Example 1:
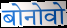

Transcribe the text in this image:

बोनोवो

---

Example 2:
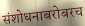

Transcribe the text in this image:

संशोधनाबरोबरच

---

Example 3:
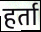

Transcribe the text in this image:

हर्ता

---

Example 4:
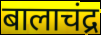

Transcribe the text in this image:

बालाचंद्र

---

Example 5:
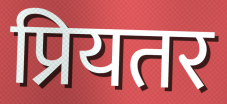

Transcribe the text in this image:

प्रियतर